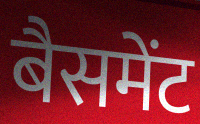
बैसमेंट